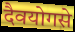
दैवयोगसे